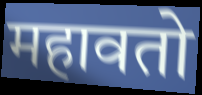
महावतो